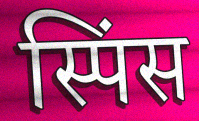
स्पिंस